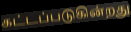
கட்டப்படுகின்றது